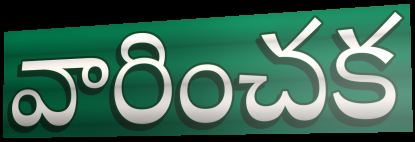
వారించక